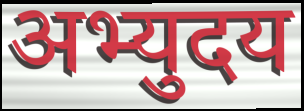
अभ्युदय